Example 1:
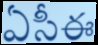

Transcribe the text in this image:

ఏసీఈ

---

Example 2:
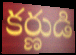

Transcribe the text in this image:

కర్ణుడి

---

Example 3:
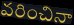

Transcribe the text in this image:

వరించినా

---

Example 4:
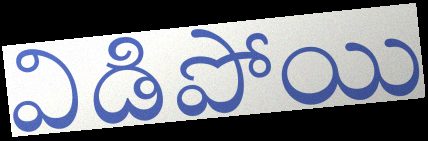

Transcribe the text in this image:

విడిపోయి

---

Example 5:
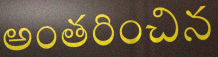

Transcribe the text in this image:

అంతరించిన